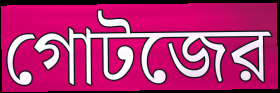
গোটজের